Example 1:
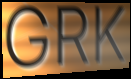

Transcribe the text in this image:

GRK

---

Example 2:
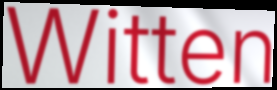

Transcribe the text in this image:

Witten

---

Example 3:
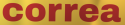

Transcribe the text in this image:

correa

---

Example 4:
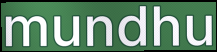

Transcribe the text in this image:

mundhu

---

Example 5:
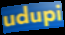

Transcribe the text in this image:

udupi